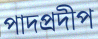
পাদপ্রদীপ